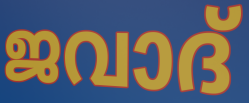
ജവാദ്